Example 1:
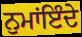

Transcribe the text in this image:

ਨੁਮਾਂਇੰਦੇ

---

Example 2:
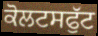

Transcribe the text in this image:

ਕੋਲਟਸਫੁੱਟ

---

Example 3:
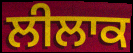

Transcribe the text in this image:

ਲੀਲਾਕ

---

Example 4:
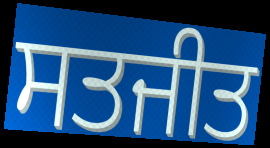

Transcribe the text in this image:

ਸਤਜੀਤ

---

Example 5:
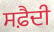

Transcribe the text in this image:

ਸਫ਼ੈਦੀ